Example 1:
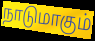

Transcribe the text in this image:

நாடுமாகும்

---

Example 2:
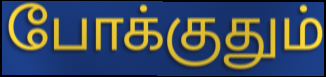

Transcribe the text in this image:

போக்குதும்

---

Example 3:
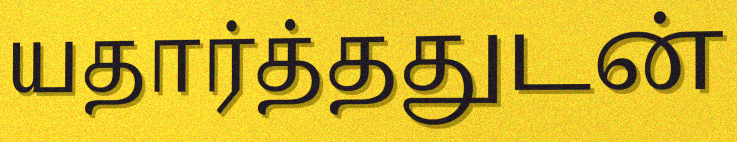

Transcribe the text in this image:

யதார்த்ததுடன்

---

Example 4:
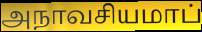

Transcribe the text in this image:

அநாவசியமாப்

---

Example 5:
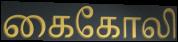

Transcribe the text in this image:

கைகோலி